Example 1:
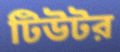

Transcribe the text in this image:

টিউটর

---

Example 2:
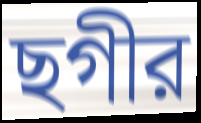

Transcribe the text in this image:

ছগীর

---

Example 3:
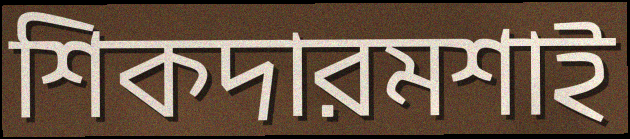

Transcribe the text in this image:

শিকদারমশাই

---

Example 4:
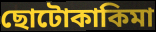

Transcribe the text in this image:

ছোটোকাকিমা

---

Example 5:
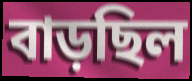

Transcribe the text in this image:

বাড়ছিল